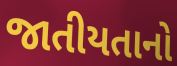
જાતીયતાનો